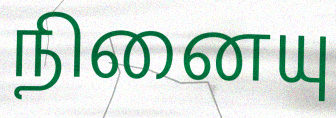
நினையு